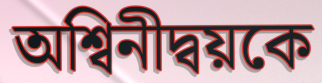
অশ্বিনীদ্বয়কে